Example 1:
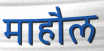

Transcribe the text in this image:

माहौल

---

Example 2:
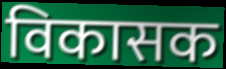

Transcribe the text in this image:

विकासक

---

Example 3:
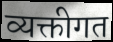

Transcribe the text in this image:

व्यक्तीगत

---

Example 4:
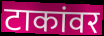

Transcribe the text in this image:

टाकांवर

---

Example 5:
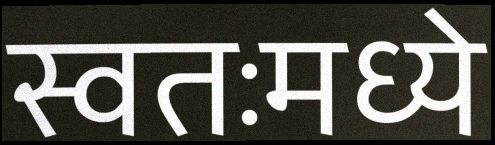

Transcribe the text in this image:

स्वतःमध्ये